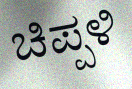
ಚಿಪ್ಪಳಿ